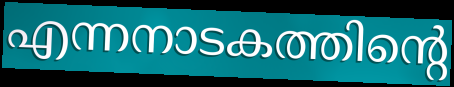
എന്നനാടകത്തിന്റെ